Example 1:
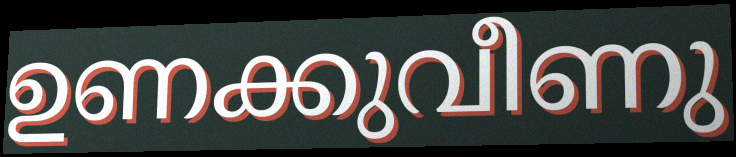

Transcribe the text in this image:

ഉണക്കുവീണു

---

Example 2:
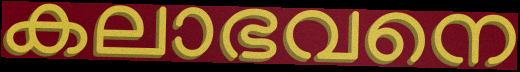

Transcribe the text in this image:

കലാഭവനെ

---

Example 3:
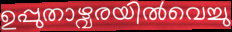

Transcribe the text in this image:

ഉപ്പുതാഴ്വരയിൽവെച്ചു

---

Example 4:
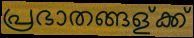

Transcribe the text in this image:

പ്രഭാതങ്ങള്ക്ക്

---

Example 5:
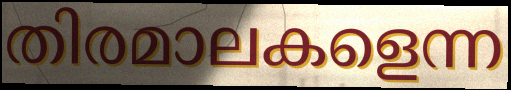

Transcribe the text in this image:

തിരമാലകളെന്ന